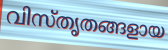
വിസ്തൃതങ്ങളായ